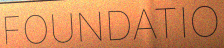
FOUNDATIO